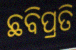
ଛବିପ୍ରତି